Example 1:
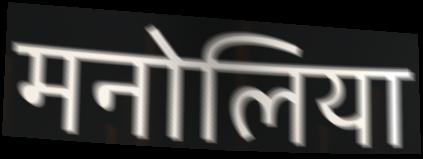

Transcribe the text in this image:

मनोलिया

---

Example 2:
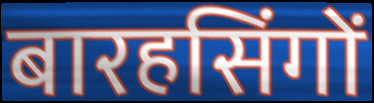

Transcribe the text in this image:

बारहसिंगों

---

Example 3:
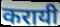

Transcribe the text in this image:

करायी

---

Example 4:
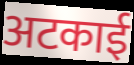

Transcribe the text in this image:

अटकाई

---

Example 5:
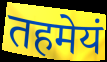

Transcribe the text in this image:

तहमेयं